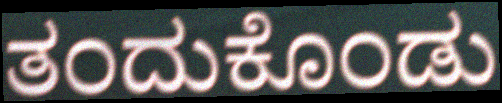
ತಂದುಕೊಂಡು